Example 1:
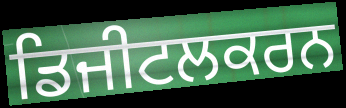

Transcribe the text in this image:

ਡਿਜੀਟਲਕਰਨ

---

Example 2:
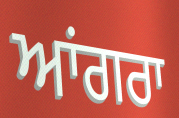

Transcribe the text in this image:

ਆਂਗਰਾ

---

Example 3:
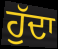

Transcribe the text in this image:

ਹੁੱਦਾ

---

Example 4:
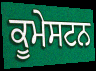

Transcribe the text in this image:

ਕੂਮੇਸਟਨ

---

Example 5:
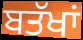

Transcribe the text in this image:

ਬਤੱਖਾਂ